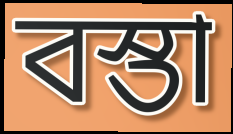
বস্তা